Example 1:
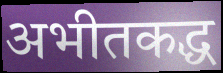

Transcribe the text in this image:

अभीतकद्ध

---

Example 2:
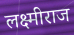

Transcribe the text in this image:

लक्ष्मीराज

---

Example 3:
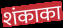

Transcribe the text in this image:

शंकाका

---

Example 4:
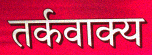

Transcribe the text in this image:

तर्कवाक्य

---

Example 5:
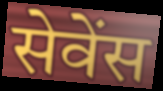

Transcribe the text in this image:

सेवेंस